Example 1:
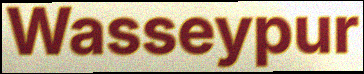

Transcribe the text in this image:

Wasseypur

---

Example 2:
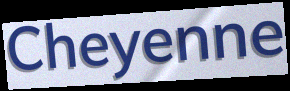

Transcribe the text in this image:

Cheyenne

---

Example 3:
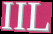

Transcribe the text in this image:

IIL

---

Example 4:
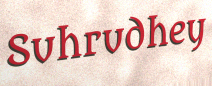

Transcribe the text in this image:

Suhrudhey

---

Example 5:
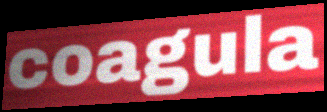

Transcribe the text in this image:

coagula